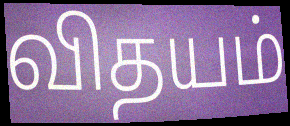
விதயம்